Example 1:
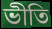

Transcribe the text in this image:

ভীতি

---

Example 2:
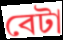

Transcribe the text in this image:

বেটা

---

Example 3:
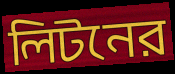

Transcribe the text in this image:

লিটনের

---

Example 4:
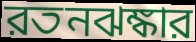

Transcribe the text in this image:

রতনঝঙ্কার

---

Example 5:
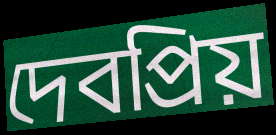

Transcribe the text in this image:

দেবপ্রিয়